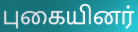
புகையினர்